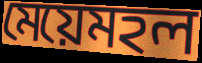
মেয়েমহল